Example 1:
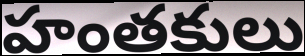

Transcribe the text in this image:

హంతకులు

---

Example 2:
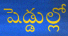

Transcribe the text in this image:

షెడ్డుల్లో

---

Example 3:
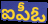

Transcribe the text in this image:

ఐపీఓ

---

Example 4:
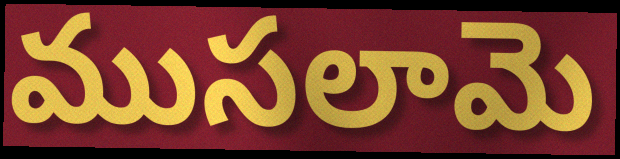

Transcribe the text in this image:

ముసలామె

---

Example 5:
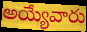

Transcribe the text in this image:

అయ్యేవారు